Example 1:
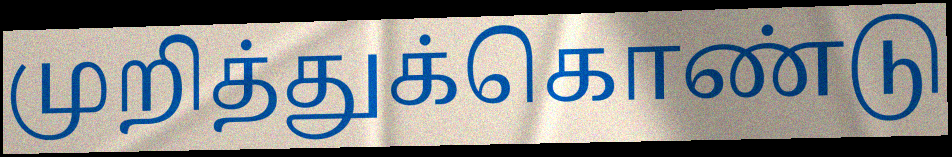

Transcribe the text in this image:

முறித்துக்கொண்டு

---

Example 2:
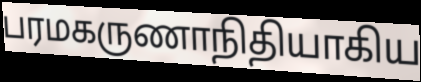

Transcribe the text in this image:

பரமகருணாநிதியாகிய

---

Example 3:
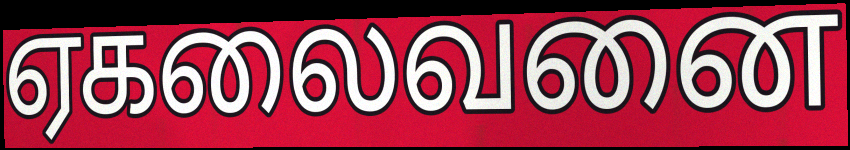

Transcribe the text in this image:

ஏகலைவனை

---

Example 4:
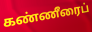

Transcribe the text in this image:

கண்ணீரைப்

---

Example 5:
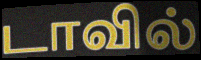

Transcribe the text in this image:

டாவில்